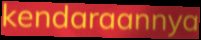
kendaraannya